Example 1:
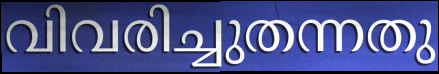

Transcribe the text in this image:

വിവരിച്ചുതന്നതു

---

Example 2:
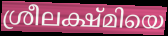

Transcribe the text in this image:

ശ്രീലക്ഷ്മിയെ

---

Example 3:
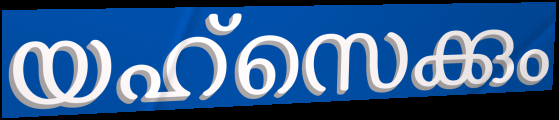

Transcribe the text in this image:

യഹ്സെക്കും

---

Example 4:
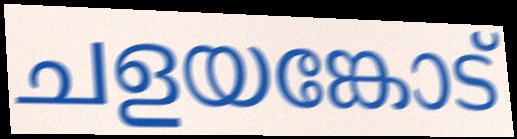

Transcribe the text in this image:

ചളയങ്കോട്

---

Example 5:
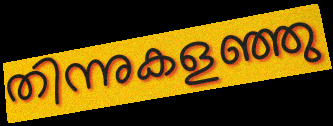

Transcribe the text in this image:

തിന്നുകളഞ്ഞു